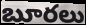
బూరలు